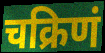
चक्रिणं